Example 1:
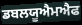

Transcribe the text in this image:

ਡਬਲਯੂਐਮਐਫ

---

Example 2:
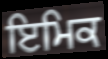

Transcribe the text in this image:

ਇਮਿਕ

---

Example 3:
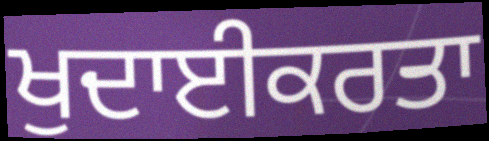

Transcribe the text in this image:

ਖੁਦਾਈਕਰਤਾ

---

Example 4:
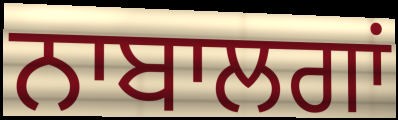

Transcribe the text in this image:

ਨਾਬਾਲਗਾਂ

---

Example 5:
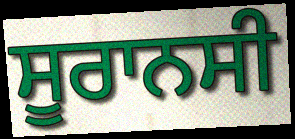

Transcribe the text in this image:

ਸੂਰਾਨਸੀ